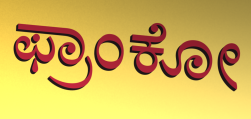
ಫ್ರಾಂಕೋ